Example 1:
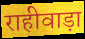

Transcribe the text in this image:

राहीवाड़ा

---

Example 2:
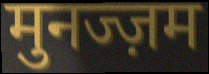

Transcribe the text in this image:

मुनज्ज़म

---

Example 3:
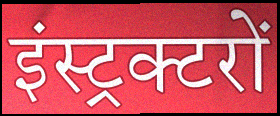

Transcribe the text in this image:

इंस्ट्रक्टरों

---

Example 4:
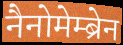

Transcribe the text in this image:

नैनोमेम्ब्रेन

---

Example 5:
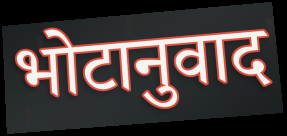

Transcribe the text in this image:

भोटानुवाद